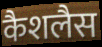
कैशलैस